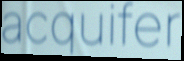
acquifer